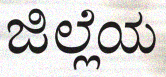
ಜಿಲ್ಲೆಯ